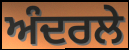
ਅੰਦਰਲੇ